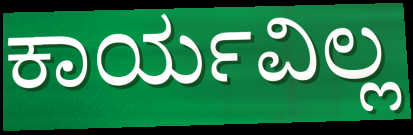
ಕಾರ್ಯವಿಲ್ಲ